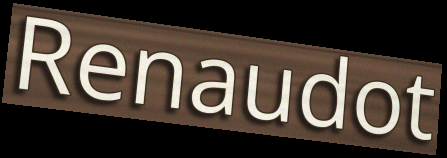
Renaudot